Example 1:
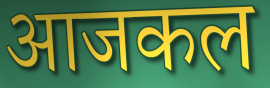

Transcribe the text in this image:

आजकल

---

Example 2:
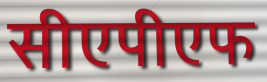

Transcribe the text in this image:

सीएपीएफ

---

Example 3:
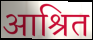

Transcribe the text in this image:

आश्रित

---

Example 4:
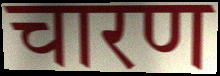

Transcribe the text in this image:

चारण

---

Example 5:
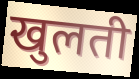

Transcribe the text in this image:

खुलती